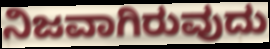
ನಿಜವಾಗಿರುವುದು